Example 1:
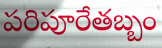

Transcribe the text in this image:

పరిపూరేతబ్బం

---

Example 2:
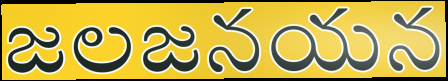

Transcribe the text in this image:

జలజనయన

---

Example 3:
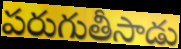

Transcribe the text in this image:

పరుగుతీసాడు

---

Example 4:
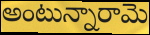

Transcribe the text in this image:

అంటున్నారామె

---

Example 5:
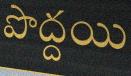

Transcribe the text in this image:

పొద్దయి